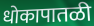
धोकापातळी